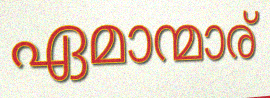
ഏമാന്മാര്